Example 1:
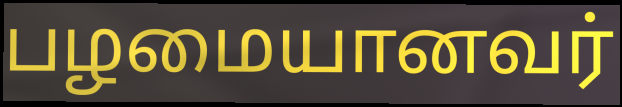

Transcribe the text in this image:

பழமையானவர்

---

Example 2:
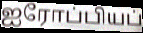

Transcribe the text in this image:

ஐரோப்பியப்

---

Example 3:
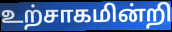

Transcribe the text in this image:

உற்சாகமின்றி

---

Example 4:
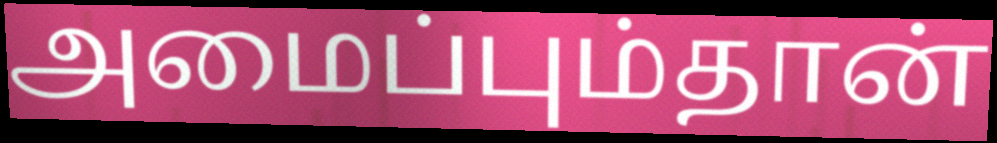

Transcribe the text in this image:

அமைப்பும்தான்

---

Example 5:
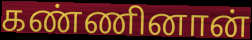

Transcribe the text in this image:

கண்ணினான்